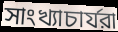
সাংখ্যাচার্যরা